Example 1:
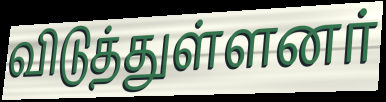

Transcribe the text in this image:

விடுத்துள்ளனர்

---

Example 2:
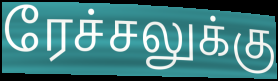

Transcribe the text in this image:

ரேச்சலுக்கு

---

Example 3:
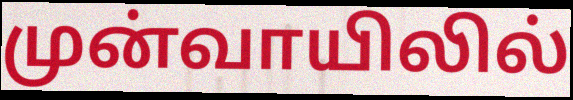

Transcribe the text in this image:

முன்வாயிலில்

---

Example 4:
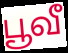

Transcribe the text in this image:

பூவீ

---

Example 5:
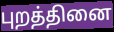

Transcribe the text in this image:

புறத்தினை